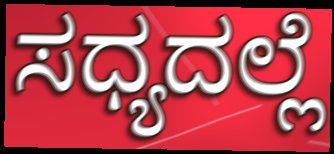
ಸಧ್ಯದಲ್ಲೆ